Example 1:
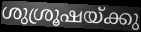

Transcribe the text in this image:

ശുശ്രൂഷയ്ക്കു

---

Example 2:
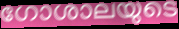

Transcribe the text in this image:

ഗോശാലയുടെ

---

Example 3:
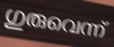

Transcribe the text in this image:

ഗുരുവെന്ന്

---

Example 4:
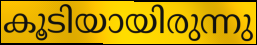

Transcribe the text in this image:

കൂടിയായിരുന്നു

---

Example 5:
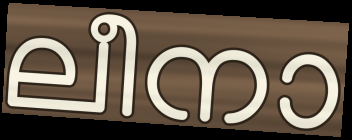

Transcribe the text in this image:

ലീനാ